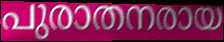
പുരാതനരായ